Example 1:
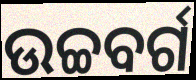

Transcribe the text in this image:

ଉଚ୍ଚବର୍ଗ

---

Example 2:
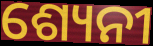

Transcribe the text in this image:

ଶ୍ୟେନୀ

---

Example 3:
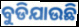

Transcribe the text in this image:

ବୁଡିଯାଉଛି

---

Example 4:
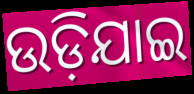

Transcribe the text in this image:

ଉଡ଼ିଯାଇ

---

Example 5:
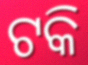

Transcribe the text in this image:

ଟକି